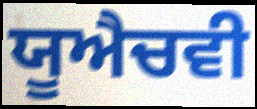
ਯੂਐਚਵੀ